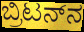
ಬ್ರಿಟನ್‌ನ